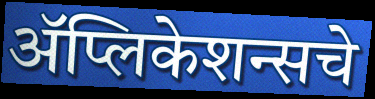
ॲप्लिकेशन्सचे